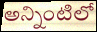
అన్నింటిలో